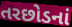
તરછોડનાં